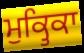
ਮੁਕ੍ਤਿਕਾ